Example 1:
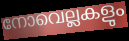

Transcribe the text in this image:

നോവെല്ലകളും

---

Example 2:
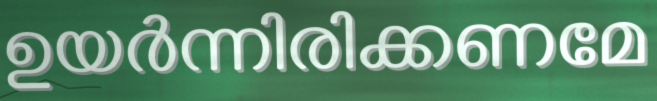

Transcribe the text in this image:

ഉയർന്നിരിക്കണമേ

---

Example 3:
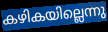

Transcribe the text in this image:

കഴികയില്ലെന്നു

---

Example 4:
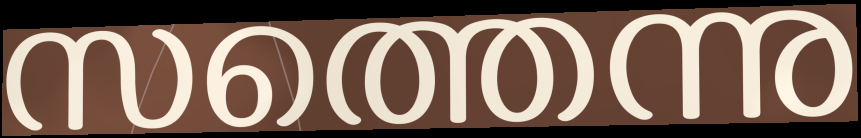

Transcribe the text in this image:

സത്തെന്നു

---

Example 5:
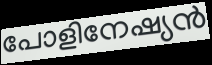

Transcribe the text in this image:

പോളിനേഷ്യൻ